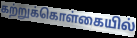
கற்றுக்கொள்கையில்